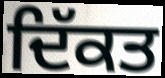
ਦਿੱਕਤ